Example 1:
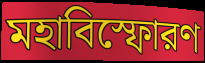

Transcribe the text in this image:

মহাবিস্ফোরণ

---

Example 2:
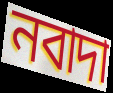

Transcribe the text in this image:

নবাদা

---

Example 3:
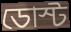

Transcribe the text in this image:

ডোস্ট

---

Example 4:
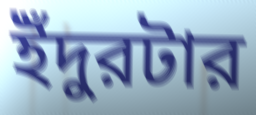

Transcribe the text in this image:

ইঁদুরটার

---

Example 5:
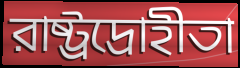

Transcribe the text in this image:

রাষ্ট্রদ্রোহীতা